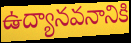
ఉద్యానవనానికి